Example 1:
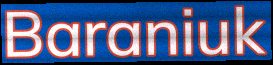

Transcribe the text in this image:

Baraniuk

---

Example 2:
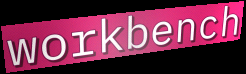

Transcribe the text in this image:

workbench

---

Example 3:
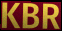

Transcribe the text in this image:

KBR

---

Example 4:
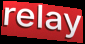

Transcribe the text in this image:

relay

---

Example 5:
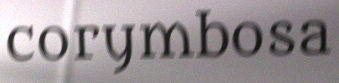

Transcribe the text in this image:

corymbosa